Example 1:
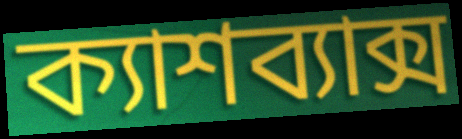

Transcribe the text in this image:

ক্যাশব্যাক্স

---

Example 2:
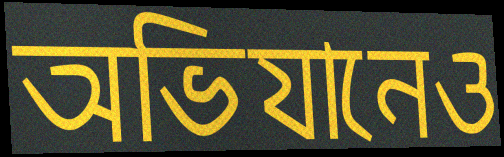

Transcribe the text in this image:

অভিযানেও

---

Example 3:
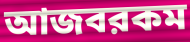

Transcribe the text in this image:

আজবরকম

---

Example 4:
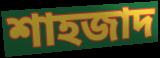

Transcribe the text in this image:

শাহজাদ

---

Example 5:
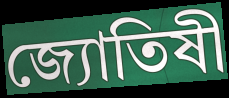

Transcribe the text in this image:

জ্যোতিষী